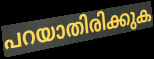
പറയാതിരിക്കുക